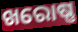
ଖରୋଷ୍ଣ